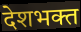
देशभक्त